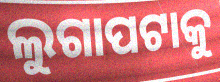
ଲୁଗାପଟାକୁ